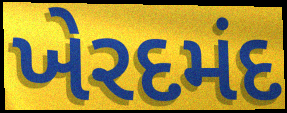
ખેરદમંદ